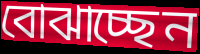
বোঝাচ্ছেন